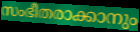
സംഭീതരാക്കാനും